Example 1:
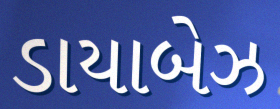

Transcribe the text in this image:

ડાયાબેઝ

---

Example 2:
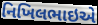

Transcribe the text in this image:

નિખિલભાઇએ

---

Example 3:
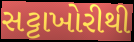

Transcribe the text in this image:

સટ્ટાખોરીથી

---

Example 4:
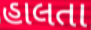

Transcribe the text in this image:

હાલતા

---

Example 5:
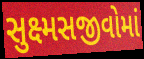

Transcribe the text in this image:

સુક્ષ્મસજીવોમાં